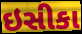
ઇસીકા